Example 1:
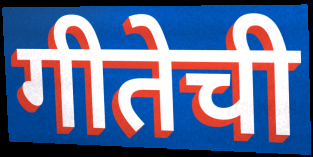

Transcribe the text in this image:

गीतेची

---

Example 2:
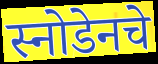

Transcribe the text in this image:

स्नोडेनचे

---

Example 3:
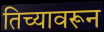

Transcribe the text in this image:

तिच्यावरून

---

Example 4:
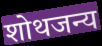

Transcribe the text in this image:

शोथजन्य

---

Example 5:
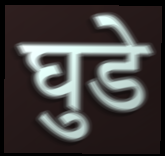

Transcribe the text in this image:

घुडे